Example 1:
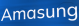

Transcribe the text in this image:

Amasung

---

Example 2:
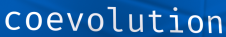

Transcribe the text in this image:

coevolution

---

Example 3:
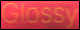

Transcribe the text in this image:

Glossy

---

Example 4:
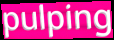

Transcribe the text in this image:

pulping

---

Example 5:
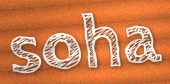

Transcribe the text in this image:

soha